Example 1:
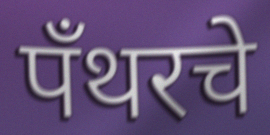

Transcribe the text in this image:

पँथरचे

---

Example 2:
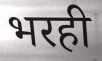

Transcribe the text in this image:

भरही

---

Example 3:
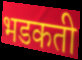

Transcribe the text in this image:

भडकती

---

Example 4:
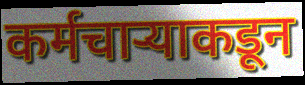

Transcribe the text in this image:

कर्मचाऱ्याकडून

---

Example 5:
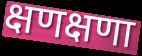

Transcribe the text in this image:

क्षणक्षणा